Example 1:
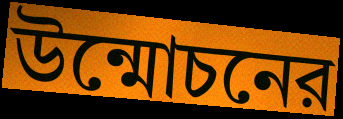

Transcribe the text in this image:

উন্মোচনের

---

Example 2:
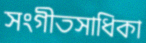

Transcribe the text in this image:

সংগীতসাধিকা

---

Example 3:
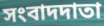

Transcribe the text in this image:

সংবাদদাতা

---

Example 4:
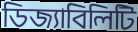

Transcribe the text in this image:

ডিজ্যাবিলিটি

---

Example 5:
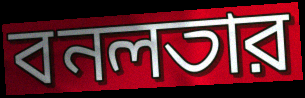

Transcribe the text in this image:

বনলতার